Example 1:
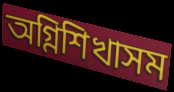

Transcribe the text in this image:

অগ্নিশিখাসম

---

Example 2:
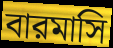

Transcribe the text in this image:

বারমাসি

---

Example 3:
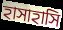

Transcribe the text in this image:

হাসাহাসি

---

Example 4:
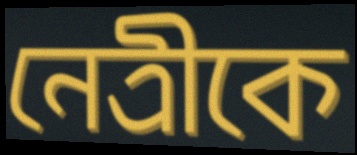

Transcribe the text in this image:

নেত্রীকে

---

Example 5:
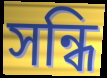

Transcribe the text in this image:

সন্ধি